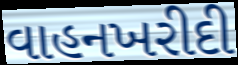
વાહનખરીદી